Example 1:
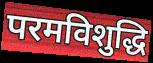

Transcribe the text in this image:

परमविशुद्धि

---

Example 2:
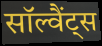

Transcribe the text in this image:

सॉल्वैंट्स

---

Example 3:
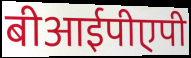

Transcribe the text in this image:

बीआईपीएपी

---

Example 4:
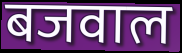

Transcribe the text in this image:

बजवाल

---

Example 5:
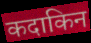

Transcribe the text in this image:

कदाकिन